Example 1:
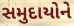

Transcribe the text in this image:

સમુદાયોને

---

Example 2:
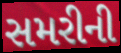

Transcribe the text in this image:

સમરીની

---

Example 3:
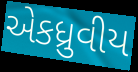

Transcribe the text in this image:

એકધ્રુવીય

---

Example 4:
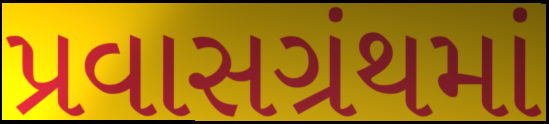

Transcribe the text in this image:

પ્રવાસગ્રંથમાં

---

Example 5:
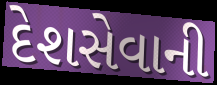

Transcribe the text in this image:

દેશસેવાની